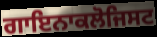
ਗਾਇਨਾਕਲੋਜਿਸਟ